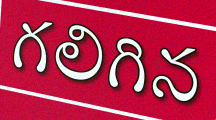
గలిగిన